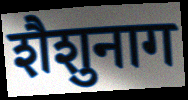
शैशुनाग